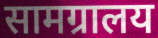
सामग्रालय